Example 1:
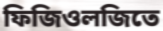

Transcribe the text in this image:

ফিজিওলজিতে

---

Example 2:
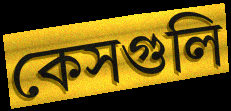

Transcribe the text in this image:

কেসগুলি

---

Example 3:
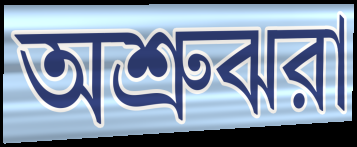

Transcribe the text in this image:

অশ্রুঝরা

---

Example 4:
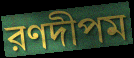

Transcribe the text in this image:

রণদীপম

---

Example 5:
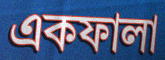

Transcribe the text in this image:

একফালা